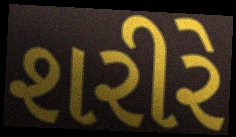
શરીરે